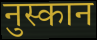
नुस्कान